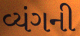
વ્યંગની